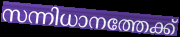
സന്നിധാനത്തേക്ക്